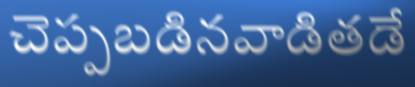
చెప్పబడినవాడితడే